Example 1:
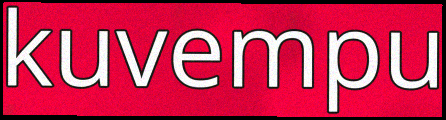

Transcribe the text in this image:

kuvempu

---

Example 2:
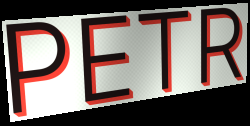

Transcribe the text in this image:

PETR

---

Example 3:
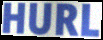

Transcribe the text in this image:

HURL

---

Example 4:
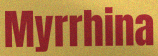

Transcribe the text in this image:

Myrrhina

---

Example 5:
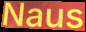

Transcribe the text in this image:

Naus